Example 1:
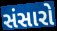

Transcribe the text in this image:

સંસારો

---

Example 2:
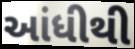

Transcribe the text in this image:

આંધીથી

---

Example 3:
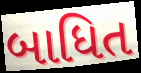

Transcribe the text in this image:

બાધિત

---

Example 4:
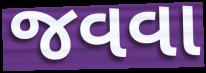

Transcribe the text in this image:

જવવા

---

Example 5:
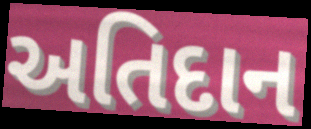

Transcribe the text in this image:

અતિદાન